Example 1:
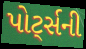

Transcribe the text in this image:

પોર્ટ્સની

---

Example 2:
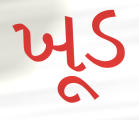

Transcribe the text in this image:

ખૂડ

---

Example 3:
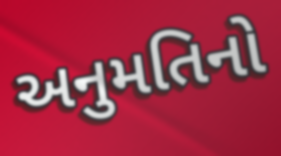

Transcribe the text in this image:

અનુમતિનો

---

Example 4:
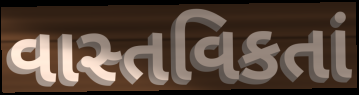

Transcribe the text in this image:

વાસ્તવિકતાં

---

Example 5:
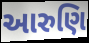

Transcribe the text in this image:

આરુણિ